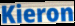
Kieron